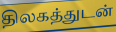
திலகத்துடன்